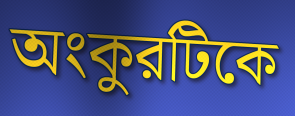
অংকুরটিকে